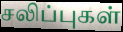
சலிப்புகள்